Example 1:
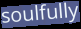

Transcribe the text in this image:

soulfully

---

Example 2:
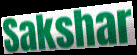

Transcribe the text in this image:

Sakshar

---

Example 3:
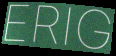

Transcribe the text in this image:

ERIG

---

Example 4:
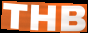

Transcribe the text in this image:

THB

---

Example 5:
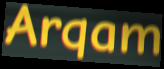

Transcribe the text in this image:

Arqam